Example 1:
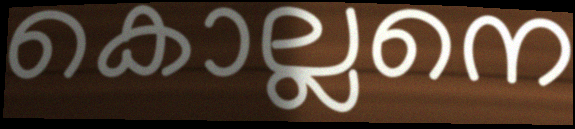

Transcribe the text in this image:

കൊല്ലനെ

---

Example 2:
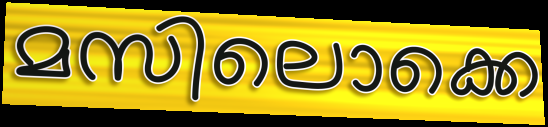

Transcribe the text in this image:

മസിലൊക്കെ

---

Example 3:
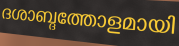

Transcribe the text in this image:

ദശാബ്ദത്തോളമായി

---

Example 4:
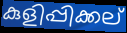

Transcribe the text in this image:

കുളിപ്പിക്കല്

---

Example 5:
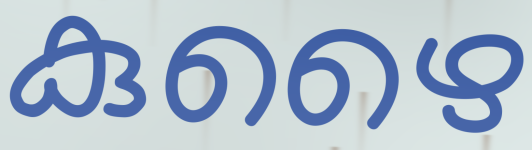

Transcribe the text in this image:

കുഴൈ